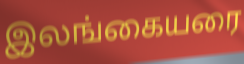
இலங்கையரை